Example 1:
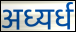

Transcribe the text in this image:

अध्यर्ध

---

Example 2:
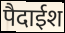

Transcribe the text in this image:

पैदाईश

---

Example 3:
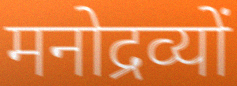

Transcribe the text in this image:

मनोद्रव्यों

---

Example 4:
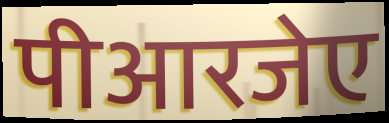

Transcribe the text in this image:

पीआरजेए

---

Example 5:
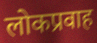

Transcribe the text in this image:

लोकप्रवाह